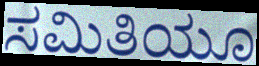
ಸಮಿತಿಯೂ